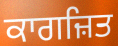
ਕਾਗਜ਼ਿਤ